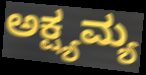
ಅಕ್ಷ್ಯಮ್ಯ